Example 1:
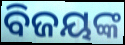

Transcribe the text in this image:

ବିଜୟଙ୍କ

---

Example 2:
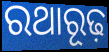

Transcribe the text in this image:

ରଥାରୂଢ଼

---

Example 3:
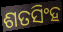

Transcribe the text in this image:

ଶତସିଂହ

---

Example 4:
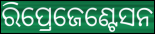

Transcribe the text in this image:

ରିପ୍ରେଜେଣ୍ଟେସନ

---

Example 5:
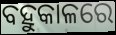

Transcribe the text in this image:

ବହୁକାଳରେ